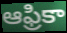
ఆఫ్రికా